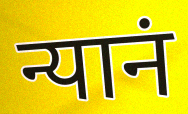
न्यानं